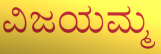
ವಿಜಯಮ್ಮ